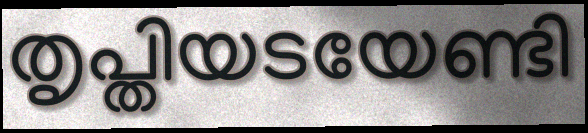
തൃപ്തിയടയേണ്ടി